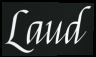
Laud